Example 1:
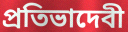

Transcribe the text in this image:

প্রতিভাদেবী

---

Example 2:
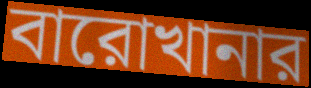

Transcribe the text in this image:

বারোখানার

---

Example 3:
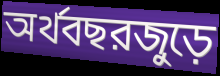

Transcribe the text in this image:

অর্থবছরজুড়ে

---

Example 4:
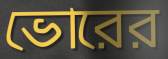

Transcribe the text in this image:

ভোরের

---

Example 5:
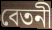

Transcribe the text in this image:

বেতনী